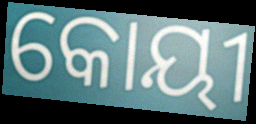
କୋୟୀ